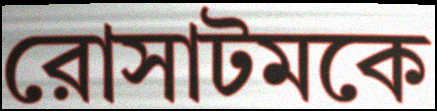
রোসাটমকে